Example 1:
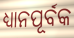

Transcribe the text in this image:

ଧ୍ୟାନପୂର୍ବକ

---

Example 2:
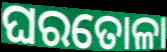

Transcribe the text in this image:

ଘରତୋଳା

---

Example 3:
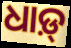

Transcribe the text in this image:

ଧାଡ଼୍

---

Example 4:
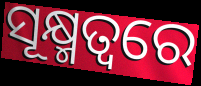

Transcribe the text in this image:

ସୂକ୍ଷ୍ମତ୍ୱରେ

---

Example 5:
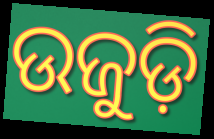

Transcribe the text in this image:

ଉଜୁଡ଼ି